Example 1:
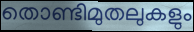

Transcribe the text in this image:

തൊണ്ടിമുതലുകളും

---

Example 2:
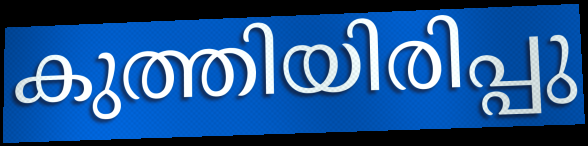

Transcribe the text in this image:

കുത്തിയിരിപ്പു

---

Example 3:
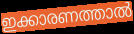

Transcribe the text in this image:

ഇക്കാരണത്താൽ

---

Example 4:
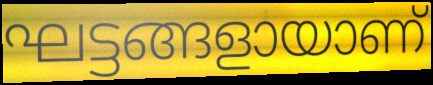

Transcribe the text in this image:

ഘട്ടങ്ങളായാണ്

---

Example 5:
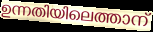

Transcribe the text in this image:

ഉന്നതിയിലെത്താന്